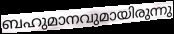
ബഹുമാനവുമായിരുന്നു